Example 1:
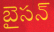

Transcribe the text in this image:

బైసన్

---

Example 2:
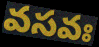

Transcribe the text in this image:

వసవః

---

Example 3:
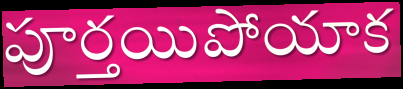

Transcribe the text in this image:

పూర్తయిపోయాక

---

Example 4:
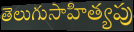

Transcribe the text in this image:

తెలుగుసాహిత్యపు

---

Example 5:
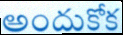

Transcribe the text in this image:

అందుకోక